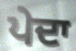
ਪੇਦਾ